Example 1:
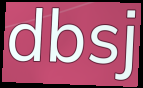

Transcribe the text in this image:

dbsj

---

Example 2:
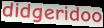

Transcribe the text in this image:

didgeridoo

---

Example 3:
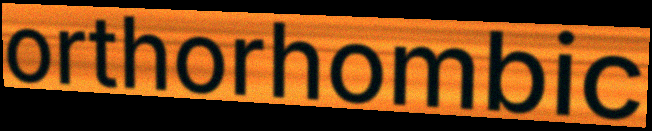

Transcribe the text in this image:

orthorhombic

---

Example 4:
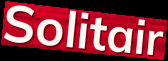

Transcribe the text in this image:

Solitair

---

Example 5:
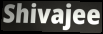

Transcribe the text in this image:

Shivajee